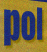
pol